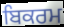
ਬਿਕਰਮ